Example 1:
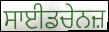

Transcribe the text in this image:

ਸਾਈਡਚੇਨਜ਼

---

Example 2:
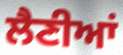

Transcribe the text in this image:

ਲੈਣੀਆਂ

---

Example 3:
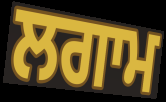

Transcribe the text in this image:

ਲਗਾਮ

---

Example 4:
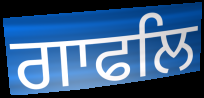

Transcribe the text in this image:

ਗਾਫਲਿ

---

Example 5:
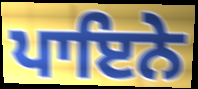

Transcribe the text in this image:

ਪਾਇਨੇ